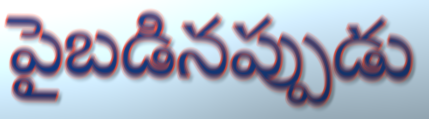
పైబడినప్పుడు